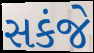
સકંજે